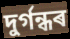
দুৰ্গন্ধৰ